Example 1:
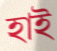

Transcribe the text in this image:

হাই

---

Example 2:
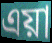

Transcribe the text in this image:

এয়া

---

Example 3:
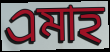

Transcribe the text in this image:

এমাহ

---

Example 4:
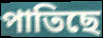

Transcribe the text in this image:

পাতিছে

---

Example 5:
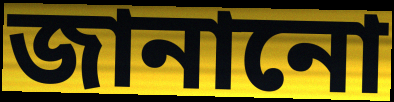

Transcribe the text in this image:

জানানো